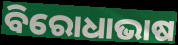
ବିରୋଧାଭାଷ